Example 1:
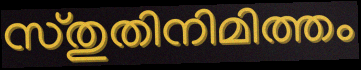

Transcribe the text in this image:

സ്തുതിനിമിത്തം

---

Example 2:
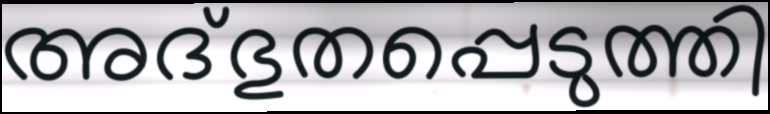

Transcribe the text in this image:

അദ്ഭുതപ്പെടുത്തി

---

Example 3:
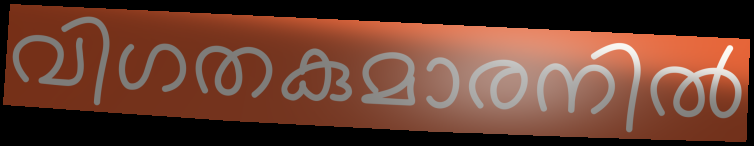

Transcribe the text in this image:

വിഗതകുമാരനിൽ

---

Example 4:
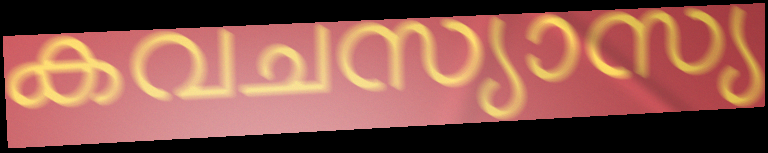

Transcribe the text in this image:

കവചസ്യാസ്യ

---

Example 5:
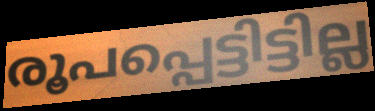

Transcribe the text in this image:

രൂപപ്പെട്ടിട്ടില്ല